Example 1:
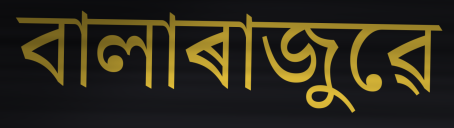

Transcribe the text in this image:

বালাৰাজুৱে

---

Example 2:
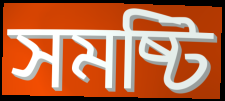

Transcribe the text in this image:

সমষ্টি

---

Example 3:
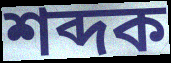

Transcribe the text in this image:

শব্দক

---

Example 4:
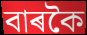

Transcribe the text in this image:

বাৰকৈ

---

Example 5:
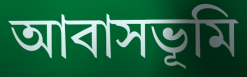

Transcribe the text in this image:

আবাসভূমি